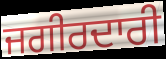
ਜਗੀਰਦਾਰੀ